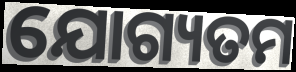
ଯୋଗ୍ୟତମ